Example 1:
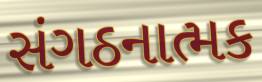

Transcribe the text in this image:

સંગઠનાત્મક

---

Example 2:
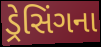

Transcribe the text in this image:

ડ્રેસિંગના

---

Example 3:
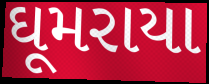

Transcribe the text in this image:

ઘૂમરાયા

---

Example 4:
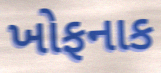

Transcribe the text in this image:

ખોફનાક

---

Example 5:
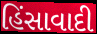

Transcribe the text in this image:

હિંસાવાદી